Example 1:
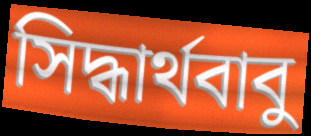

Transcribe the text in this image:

সিদ্ধার্থবাবু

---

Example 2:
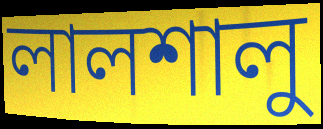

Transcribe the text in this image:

লালশালু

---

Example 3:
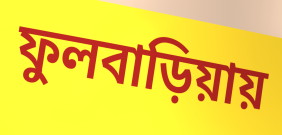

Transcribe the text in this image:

ফুলবাড়িয়ায়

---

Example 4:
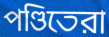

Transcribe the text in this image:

পণ্ডিতেরা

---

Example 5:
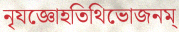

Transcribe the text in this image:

নৃযজ্ঞোহতিথিভোজনম্